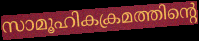
സാമൂഹികക്രമത്തിന്റെ